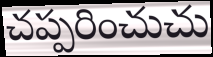
చప్పరించుచు